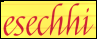
esechhi